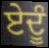
ਏਦੂੰ